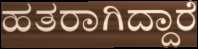
ಹತರಾಗಿದ್ದಾರೆ